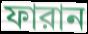
ফারান